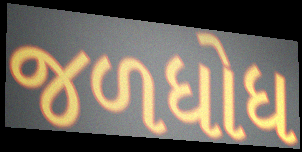
જળધોધ